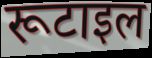
रूटाइल